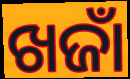
ଖଜାଁ